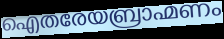
ഐതരേയബ്രാഹ്മണം